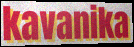
kavanika